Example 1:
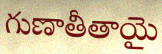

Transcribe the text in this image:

గుణాతీతాయై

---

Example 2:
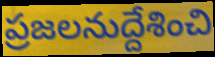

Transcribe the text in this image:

ప్రజలనుద్దేశించి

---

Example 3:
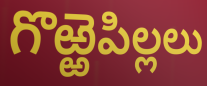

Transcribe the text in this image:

గొఱ్ఱెపిల్లలు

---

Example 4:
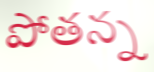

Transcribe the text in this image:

పోతన్న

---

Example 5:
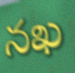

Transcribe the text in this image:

నఖ